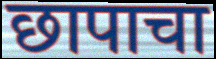
छापाचा